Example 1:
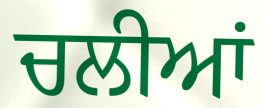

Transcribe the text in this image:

ਚਲੀਆਂ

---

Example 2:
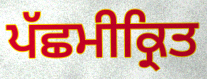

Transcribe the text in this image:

ਪੱਛਮੀਕ੍ਰਿਤ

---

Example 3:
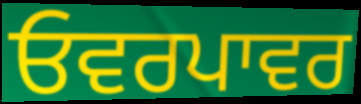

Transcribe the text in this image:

ਓਵਰਪਾਵਰ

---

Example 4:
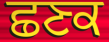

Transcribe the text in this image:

ਛਣਕ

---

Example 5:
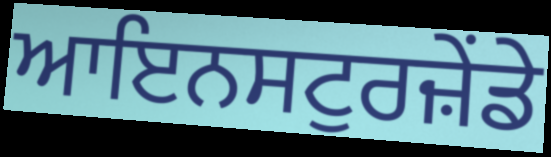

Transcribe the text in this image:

ਆਇਨਸਟੁਰਜ਼ੇਂਡੇ